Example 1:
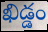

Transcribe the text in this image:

ఖిడ్డం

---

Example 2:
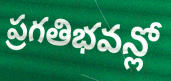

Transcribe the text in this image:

ప్రగతిభవన్లో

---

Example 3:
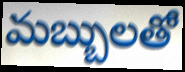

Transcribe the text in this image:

మబ్బులతో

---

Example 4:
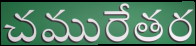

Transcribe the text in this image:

చమురేతర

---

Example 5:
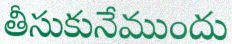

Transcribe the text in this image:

తీసుకునేముందు